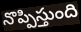
నొప్పిస్తుంది